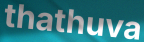
thathuva